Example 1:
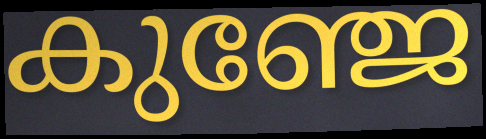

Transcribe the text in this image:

കുഞ്ജേ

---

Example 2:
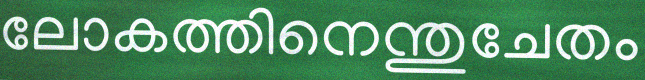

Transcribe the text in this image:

ലോകത്തിനെന്തുചേതം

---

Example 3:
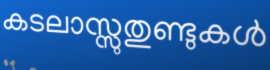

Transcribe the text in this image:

കടലാസ്സുതുണ്ടുകൾ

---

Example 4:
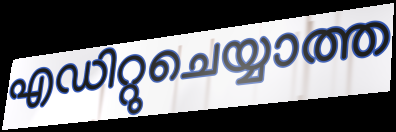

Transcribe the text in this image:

എഡിറ്റുചെയ്യാത്ത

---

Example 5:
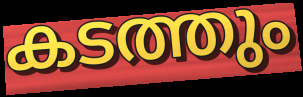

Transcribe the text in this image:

കടത്തും